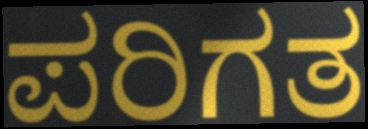
ಪರಿಗತ